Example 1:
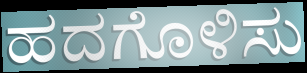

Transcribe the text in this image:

ಹದಗೊಳಿಸು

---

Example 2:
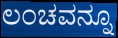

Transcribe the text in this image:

ಲಂಚವನ್ನೂ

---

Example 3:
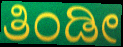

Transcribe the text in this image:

ತಿಂಡೀ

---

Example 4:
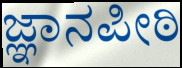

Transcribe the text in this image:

ಜ್ಞಾನಪೀಠಿ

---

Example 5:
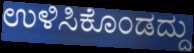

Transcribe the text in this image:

ಉಳಿಸಿಕೊಂಡದ್ದು